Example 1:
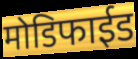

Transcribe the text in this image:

मोडिफाईड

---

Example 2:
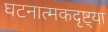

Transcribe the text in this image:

घटनात्मकदृष्ट्या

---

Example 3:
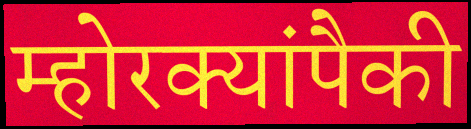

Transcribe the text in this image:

म्होरक्यांपैकी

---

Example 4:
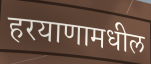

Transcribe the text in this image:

हरयाणामधील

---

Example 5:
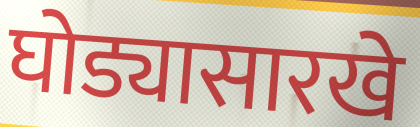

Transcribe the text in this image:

घोड्यासारखे